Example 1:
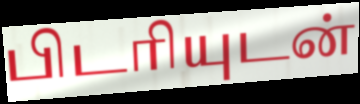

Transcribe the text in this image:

பிடரியுடன்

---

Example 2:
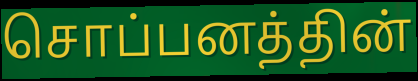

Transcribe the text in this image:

சொப்பனத்தின்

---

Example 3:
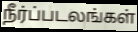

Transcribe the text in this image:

நீர்ப்படலங்கள்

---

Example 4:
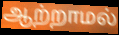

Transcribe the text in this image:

ஆற்றாமல்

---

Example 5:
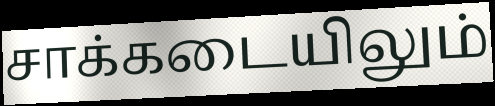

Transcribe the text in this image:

சாக்கடையிலும்